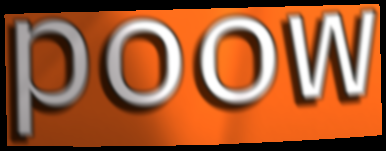
poow